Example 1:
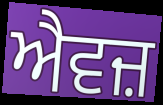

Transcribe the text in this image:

ਐਵਜ਼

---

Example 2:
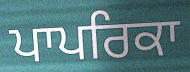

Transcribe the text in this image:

ਪਾਪਰਿਕਾ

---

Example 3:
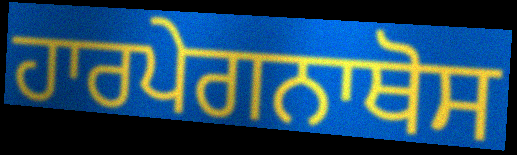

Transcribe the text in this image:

ਹਾਰਪੇਗਨਾਥੋਸ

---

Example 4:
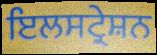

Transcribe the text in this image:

ਇਲਸਟ੍ਰੇਸ਼ਨ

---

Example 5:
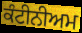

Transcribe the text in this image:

ਕੰਟੀਨੀਅਮ